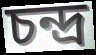
চন্দ্র